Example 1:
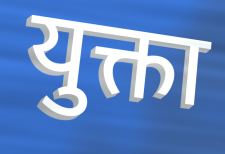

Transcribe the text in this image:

युक्ता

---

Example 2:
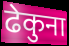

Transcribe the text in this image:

ढेकुना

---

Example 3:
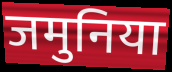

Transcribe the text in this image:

जमुनिया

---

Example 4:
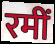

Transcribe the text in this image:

रमीं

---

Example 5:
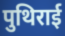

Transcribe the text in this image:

पुथिराई